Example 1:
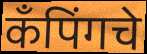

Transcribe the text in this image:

कँपिंगचे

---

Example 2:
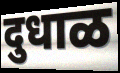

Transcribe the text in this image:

दुधाळ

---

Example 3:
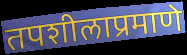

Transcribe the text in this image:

तपशीलाप्रमाणे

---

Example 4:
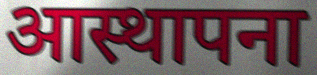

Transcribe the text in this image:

आस्थापना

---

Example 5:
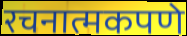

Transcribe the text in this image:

रचनात्मकपणे